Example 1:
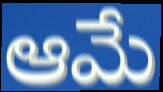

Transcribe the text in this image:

ఆమే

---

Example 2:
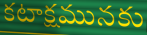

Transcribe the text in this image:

కటాక్షమునకు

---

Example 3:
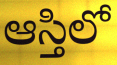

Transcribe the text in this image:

ఆస్తిలో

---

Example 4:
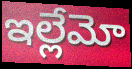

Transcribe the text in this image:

ఇల్లేమో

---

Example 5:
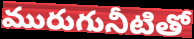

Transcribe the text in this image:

మురుగునీటితో